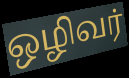
ஒழிவர்